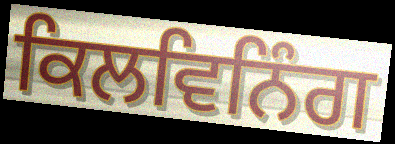
ਕਿਲਵਿਨਿੰਗ